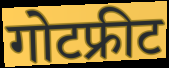
गोटफ्रीट